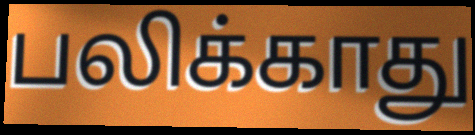
பலிக்காது